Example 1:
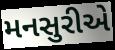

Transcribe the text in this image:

મનસુરીએ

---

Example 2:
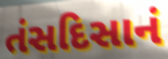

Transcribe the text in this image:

તંસદિસાનં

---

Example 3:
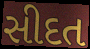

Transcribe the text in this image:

સીદત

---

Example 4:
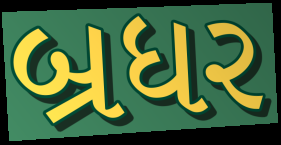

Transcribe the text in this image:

બ્રધર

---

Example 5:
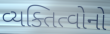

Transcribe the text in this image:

વ્યક્તિત્વોનો